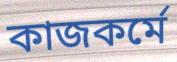
কাজকর্মে